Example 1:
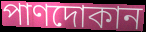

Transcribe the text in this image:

পাণদোকান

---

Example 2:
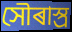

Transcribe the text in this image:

সৌৰাস্ত্ৰ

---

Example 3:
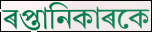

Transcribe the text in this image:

ৰপ্তানিকাৰকে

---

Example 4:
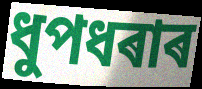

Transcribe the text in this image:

ধুপধৰাৰ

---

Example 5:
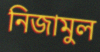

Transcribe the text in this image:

নিজামুল